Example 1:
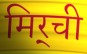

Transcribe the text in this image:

मिर्ची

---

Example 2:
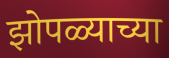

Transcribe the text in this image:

झोपळ्याच्या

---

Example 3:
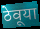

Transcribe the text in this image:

ठेवूया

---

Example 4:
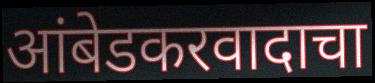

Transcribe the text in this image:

आंबेडकरवादाचा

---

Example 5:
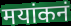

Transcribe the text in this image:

मयांकनं